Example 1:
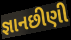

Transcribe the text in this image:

જ્ઞાનછીણી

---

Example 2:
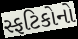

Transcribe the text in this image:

સ્ફટિકોનો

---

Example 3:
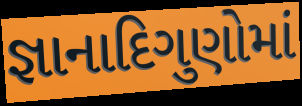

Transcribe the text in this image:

જ્ઞાનાદિગુણોમાં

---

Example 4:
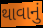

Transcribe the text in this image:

થાવાનું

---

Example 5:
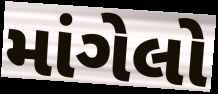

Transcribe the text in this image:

માંગેલો